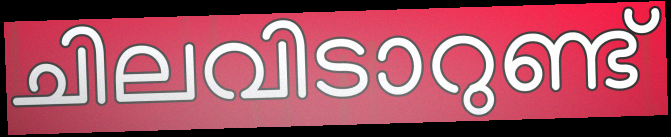
ചിലവിടാറുണ്ട്